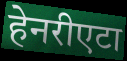
हेनरीएटा